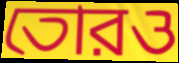
তোরও